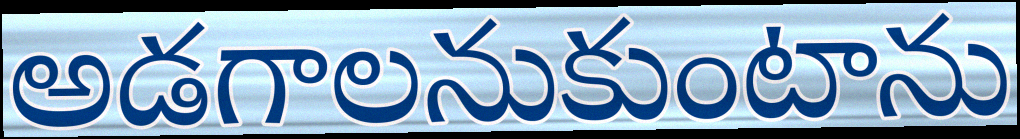
అడగాలనుకుంటాను